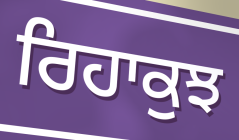
ਰਿਹਾਕੁਝ